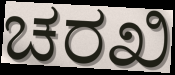
ಚರಖಿ